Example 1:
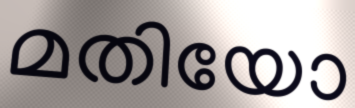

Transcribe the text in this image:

മതിയോ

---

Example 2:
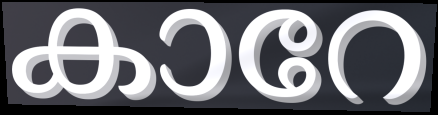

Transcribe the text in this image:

കാറേ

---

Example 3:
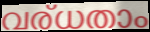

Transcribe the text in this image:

വര്ധതാം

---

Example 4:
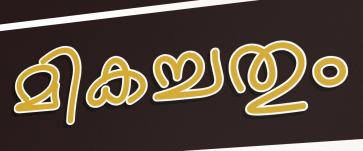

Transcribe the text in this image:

മികച്ചതും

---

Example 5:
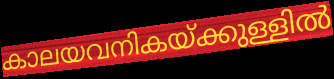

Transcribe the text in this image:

കാലയവനികയ്ക്കുള്ളിൽ